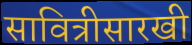
सावित्रीसारखी